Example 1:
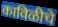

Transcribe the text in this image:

काविळीचे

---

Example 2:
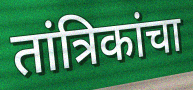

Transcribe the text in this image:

तांत्रिकांचा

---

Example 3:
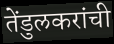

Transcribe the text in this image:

तेंडुलकरांची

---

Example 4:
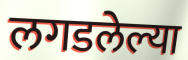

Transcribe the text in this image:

लगडलेल्या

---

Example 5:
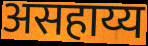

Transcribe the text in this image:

असहाय्य